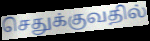
செதுக்குவதில்